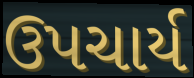
ઉપચાર્ય